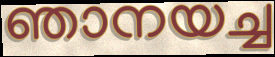
ഞാനയച്ച